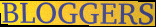
BLOGGERS